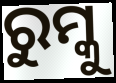
ରୁମ୍କୁ